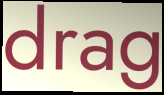
drag